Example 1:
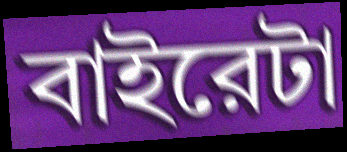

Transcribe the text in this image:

বাইরেটা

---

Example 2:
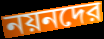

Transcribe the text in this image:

নয়নদের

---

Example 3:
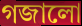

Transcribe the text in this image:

গজালো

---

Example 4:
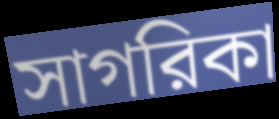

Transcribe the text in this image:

সাগরিকা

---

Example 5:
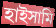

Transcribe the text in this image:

হাইসামি